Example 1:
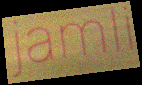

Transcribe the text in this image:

jamli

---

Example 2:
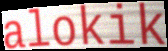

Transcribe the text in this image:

alokik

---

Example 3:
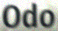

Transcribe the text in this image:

Odo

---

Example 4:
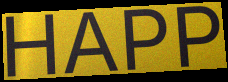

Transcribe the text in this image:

HAPP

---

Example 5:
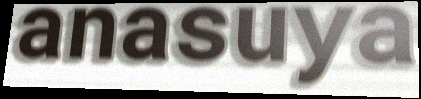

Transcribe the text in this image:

anasuya